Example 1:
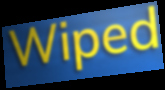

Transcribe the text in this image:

Wiped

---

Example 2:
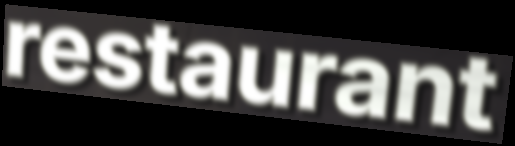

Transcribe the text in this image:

restaurant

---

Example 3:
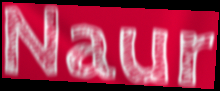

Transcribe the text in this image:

Naur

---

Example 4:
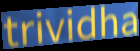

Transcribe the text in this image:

trividha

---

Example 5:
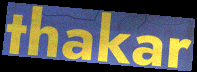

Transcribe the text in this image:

thakar